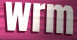
wrm